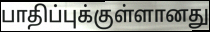
பாதிப்புக்குள்ளானது